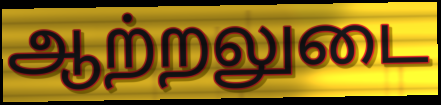
ஆற்றலுடை